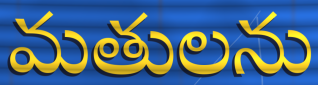
మతులను